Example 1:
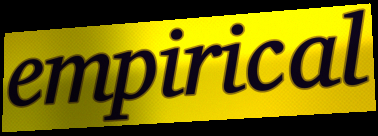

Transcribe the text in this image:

empirical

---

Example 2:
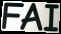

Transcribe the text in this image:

FAI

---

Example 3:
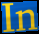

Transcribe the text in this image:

In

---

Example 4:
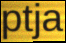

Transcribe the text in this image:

ptja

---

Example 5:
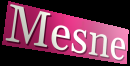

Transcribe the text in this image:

Mesne